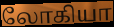
லோகியா